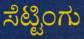
ಸೆಟ್ಟಿಂಗು